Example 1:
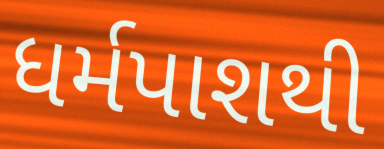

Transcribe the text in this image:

ધર્મપાશથી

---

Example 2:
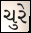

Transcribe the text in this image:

ચુરે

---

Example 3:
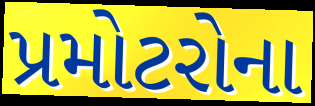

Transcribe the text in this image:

પ્રમોટરોના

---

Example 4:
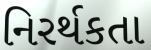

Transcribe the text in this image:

નિરર્થકતા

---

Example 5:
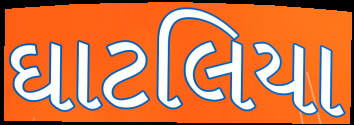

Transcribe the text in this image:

ઘાટલિયા